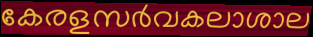
കേരളസർവകലാശാല